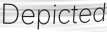
Depicted